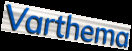
Varthema